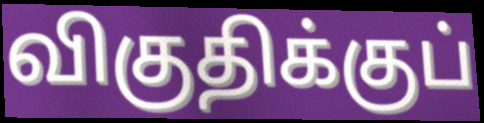
விகுதிக்குப்